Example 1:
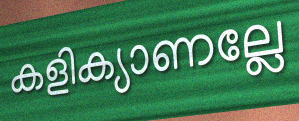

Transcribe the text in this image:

കളിക്യാണല്ലേ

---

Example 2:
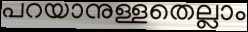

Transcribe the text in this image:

പറയാനുള്ളതെല്ലാം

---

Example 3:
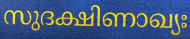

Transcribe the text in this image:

സുദക്ഷിണാഖ്യഃ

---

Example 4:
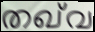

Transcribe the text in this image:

തഖ്‌വ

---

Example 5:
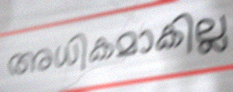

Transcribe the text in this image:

അധികമാകില്ല